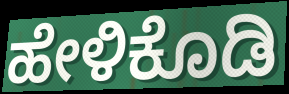
ಹೇಳಿಕೊಡಿ